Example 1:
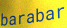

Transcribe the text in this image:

barabar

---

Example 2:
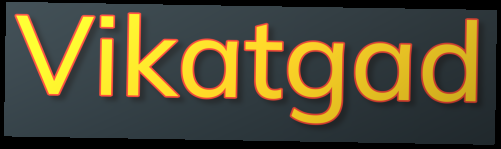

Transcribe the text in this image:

Vikatgad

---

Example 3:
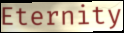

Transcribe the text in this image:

Eternity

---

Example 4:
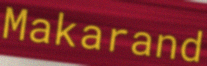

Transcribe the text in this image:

Makarand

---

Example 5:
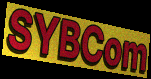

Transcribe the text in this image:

SYBCom